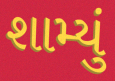
શામ્યું